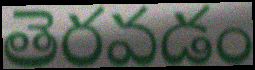
తెరవడం